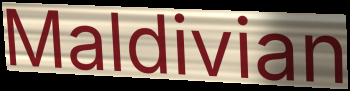
Maldivian